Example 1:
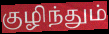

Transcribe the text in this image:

குழிந்தும்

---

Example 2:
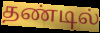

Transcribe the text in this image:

தண்டில்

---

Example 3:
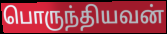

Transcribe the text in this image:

பொருந்தியவன்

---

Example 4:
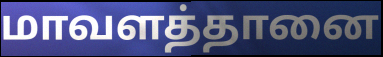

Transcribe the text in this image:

மாவளத்தானை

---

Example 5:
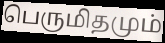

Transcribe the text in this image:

பெருமிதமும்